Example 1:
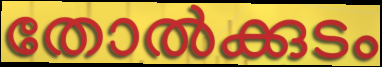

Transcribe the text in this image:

തോൽക്കുടം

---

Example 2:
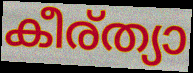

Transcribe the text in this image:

കീര്ത്യാ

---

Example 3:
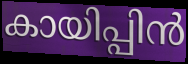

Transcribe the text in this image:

കായിപ്പിൻ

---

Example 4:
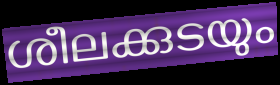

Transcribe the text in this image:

ശീലക്കുടയും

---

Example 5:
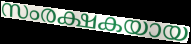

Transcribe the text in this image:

സംരക്ഷകയായ